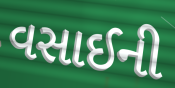
વસાઈની